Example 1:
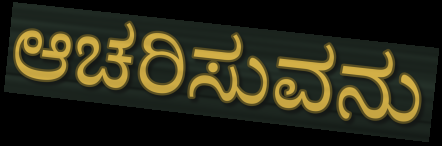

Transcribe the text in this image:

ಆಚರಿಸುವನು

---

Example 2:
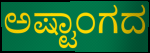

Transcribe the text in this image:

ಅಷ್ಟಾಂಗದ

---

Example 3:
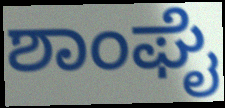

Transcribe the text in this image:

ಶಾಂಘೈ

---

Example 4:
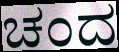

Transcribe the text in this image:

ಚಂದ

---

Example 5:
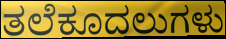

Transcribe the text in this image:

ತಲೆಕೂದಲುಗಳು